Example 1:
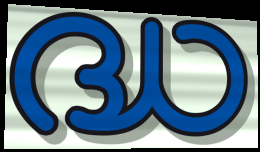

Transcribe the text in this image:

ദ്ധ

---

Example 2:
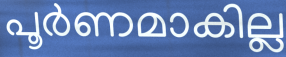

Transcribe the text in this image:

പൂർണമാകില്ല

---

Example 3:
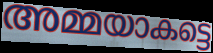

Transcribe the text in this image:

അമ്മയാകട്ടെ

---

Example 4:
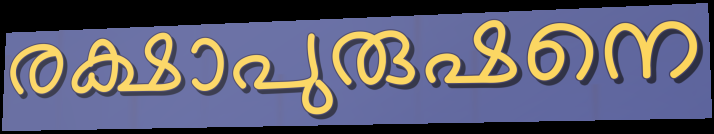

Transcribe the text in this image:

രക്ഷാപുരുഷനെ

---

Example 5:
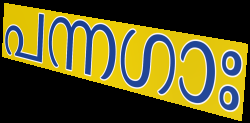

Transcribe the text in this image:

പന്നഗാഃ